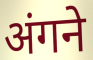
अंगने